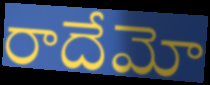
రాదేమో